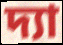
দ্যা